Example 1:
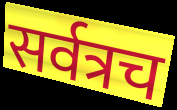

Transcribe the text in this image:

सर्वत्रच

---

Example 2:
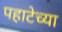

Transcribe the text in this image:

पहाटेच्या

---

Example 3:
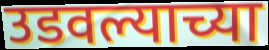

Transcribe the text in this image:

उडवल्याच्या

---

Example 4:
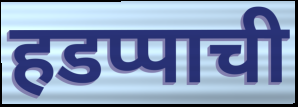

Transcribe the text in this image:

हडप्पाची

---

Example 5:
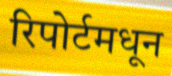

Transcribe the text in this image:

रिपोर्टमधून